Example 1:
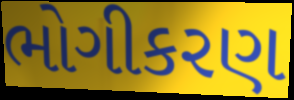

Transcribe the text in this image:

ભોગીકરણ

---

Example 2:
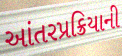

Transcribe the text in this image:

આંતરપ્રક્રિયાની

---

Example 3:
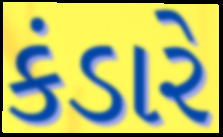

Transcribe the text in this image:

કંડારે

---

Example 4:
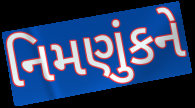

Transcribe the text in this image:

નિમણુંકને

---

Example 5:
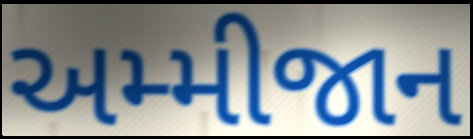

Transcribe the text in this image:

અમ્મીજાન